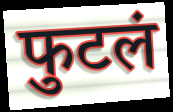
फुटलं